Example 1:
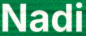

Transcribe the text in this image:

Nadi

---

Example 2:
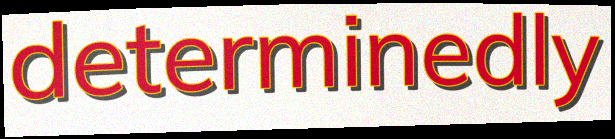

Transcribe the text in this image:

determinedly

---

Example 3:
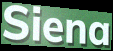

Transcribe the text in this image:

Siena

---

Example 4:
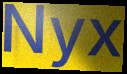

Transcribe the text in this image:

Nyx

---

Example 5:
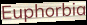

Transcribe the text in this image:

Euphorbia